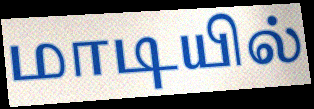
மாடியில்